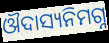
ଔଦାସ୍ୟନିମଗ୍ନ